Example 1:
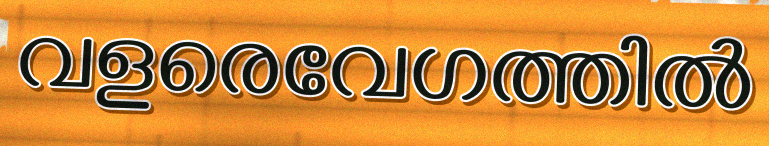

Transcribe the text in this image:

വളരെവേഗത്തിൽ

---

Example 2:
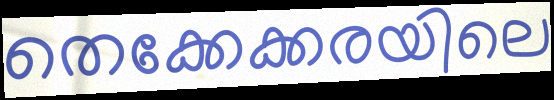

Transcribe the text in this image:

തെക്കേക്കരയിലെ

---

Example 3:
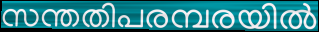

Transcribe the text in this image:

സന്തതിപരമ്പരയിൽ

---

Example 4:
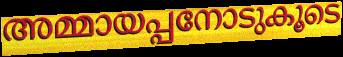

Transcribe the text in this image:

അമ്മായപ്പനോടുകൂടെ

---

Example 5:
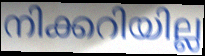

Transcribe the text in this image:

നിക്കറിയില്ല